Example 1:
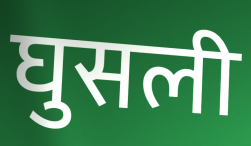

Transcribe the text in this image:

घुसली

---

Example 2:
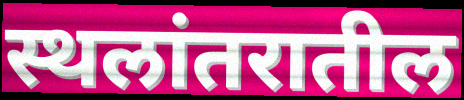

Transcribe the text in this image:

स्थलांतरातील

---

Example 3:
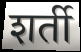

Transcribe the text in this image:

शर्ती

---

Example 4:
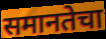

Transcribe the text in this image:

समानतेचा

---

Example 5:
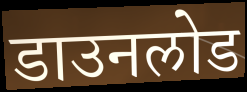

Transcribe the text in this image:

डाउनलोड